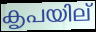
കൃപയില്